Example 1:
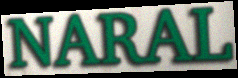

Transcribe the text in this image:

NARAL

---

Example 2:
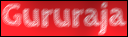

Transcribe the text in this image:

Gururaja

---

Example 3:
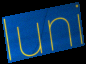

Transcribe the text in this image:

luni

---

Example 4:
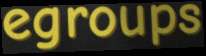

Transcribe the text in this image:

egroups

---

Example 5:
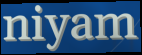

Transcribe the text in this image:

niyam